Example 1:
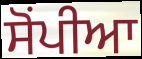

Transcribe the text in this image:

ਸੋਂਪੀਆ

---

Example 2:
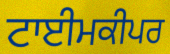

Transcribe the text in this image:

ਟਾਈਮਕੀਪਰ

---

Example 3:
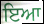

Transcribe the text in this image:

ਇਆ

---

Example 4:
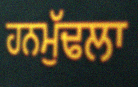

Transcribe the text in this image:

ਹਨਮੁੱਢਲਾ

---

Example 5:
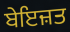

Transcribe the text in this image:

ਬੇਇਜ਼ਤ